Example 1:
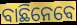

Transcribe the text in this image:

ବାଛିନେବେ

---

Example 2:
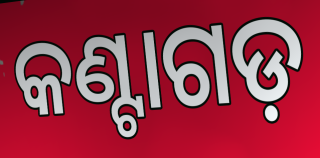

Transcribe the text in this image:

କଣ୍ଟାଗଡ଼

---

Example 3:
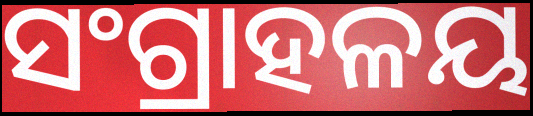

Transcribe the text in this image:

ସଂଗ୍ରାହଳୟ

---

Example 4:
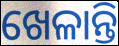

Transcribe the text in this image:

ଖେଳାନ୍ତି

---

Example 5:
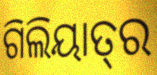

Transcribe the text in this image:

ଗିଲିୟାତ୍‍ର